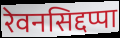
रेवनसिद्दप्पा